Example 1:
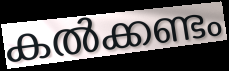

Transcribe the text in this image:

കൽക്കണ്ടം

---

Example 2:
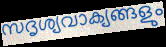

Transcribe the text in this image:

സദൃശ്യവാക്യങ്ങളും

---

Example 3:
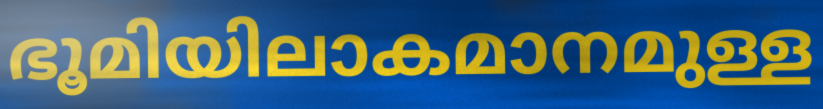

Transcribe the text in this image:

ഭൂമിയിലാകമാനമുള്ള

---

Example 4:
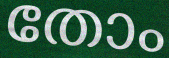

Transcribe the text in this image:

തോം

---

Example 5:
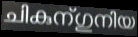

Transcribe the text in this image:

ചികുന്ഗുനിയ